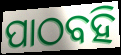
ପାଠବହି